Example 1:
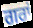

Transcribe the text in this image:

ਗਰਾਂ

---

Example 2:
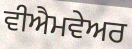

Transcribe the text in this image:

ਵੀਐਮਵੇਅਰ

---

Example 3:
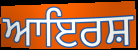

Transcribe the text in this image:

ਆਇਰਸ਼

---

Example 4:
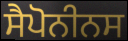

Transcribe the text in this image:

ਸੈਪੋਨੀਨਸ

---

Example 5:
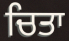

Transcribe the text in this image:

ਚਿਤਾ